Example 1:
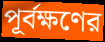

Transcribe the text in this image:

পূর্বক্ষণের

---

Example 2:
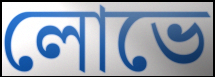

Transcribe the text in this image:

লোভে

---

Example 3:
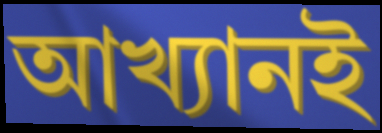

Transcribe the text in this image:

আখ্যানই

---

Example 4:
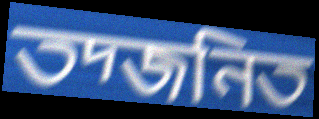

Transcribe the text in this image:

তদ্জনিত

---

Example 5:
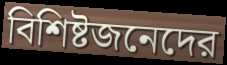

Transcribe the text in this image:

বিশিষ্টজনেদের